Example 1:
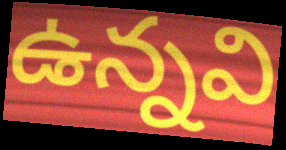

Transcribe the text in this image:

ఉన్నవి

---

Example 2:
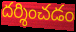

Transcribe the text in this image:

దర్శించడం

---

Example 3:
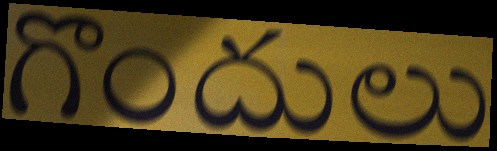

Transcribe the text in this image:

గొందులు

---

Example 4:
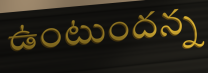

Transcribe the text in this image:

ఉంటుందన్న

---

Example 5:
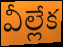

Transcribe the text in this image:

వీల్లేక